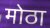
मोठा